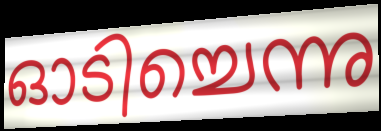
ഓടിച്ചെന്നു